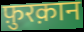
फ़ुरक़ान